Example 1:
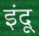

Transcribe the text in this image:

इंदू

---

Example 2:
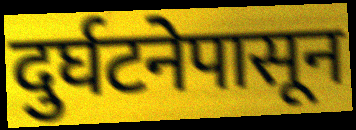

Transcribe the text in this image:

दुर्घटनेपासून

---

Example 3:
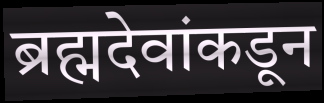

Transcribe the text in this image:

ब्रह्मदेवांकडून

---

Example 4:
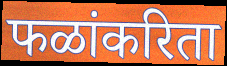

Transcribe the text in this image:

फळांकरिता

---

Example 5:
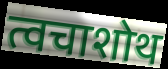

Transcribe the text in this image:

त्वचाशोथ